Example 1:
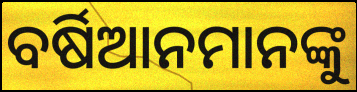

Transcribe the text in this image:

ବର୍ଷିଆନମାନଙ୍କୁ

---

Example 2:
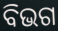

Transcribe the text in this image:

ବିଭଗ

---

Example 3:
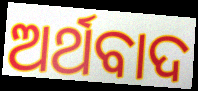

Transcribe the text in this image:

ଅର୍ଥବାଦ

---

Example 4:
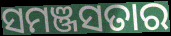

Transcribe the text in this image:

ସମଞ୍ଜସତାର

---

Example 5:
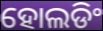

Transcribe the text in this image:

ହୋଲଡିଂ